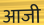
आजी